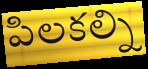
పిలకల్ని